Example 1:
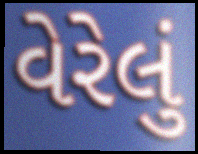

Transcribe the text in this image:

વેરેલું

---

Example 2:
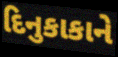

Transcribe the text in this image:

દિનુકાકાને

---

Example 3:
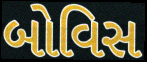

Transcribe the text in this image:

બોવિસ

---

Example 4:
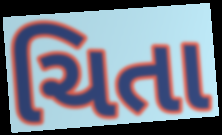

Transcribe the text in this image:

ચિતા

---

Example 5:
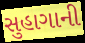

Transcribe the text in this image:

સુહાગાની